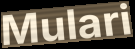
Mulari